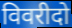
विवरीदो